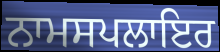
ਨਾਮਸਪਲਾਇਰ